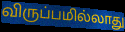
விருப்பமில்லாது